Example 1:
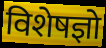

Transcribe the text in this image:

विशेषज्ञो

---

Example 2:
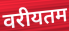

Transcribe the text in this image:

वरीयतम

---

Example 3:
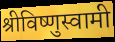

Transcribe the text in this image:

श्रीविष्णुस्वामी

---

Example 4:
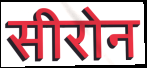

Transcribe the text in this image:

सीरोन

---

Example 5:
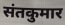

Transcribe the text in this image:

संतकुमार